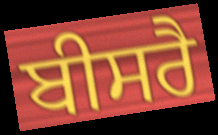
ਬੀਸਰੈ